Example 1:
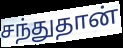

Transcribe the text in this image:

சந்துதான்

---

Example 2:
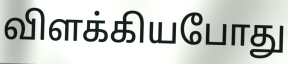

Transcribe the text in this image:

விளக்கியபோது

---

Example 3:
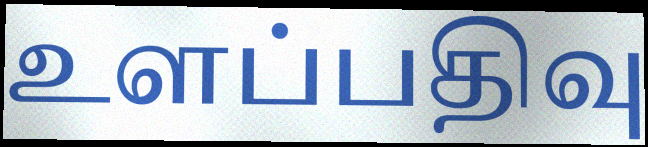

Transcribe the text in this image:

உளப்பதிவு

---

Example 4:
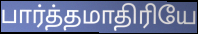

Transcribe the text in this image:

பார்த்தமாதிரியே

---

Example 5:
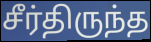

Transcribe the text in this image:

சீர்திருந்த